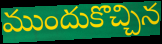
ముందుకొచ్చిన